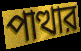
পাত্থার